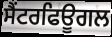
ਸੈਂਟਰਫਿਊਗਲ